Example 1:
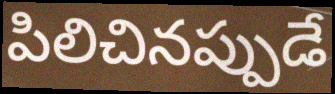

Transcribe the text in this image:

పిలిచినప్పుడే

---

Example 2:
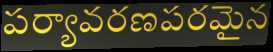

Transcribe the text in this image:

పర్యావరణపరమైన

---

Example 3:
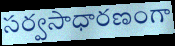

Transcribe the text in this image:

సర్వసాధారణంగా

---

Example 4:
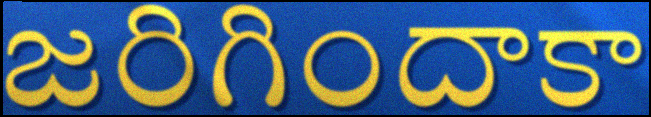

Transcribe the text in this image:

జరిగిందాకా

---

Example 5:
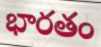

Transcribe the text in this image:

భారతం